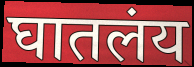
घातलंय